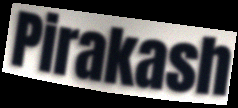
Pirakash